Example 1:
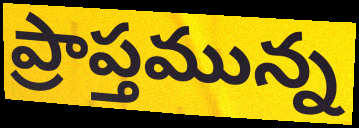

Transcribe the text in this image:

ప్రాప్తమున్న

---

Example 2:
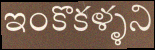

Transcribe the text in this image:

ఇంకొకళ్ళని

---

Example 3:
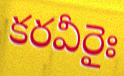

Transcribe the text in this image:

కరవీరైః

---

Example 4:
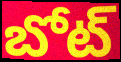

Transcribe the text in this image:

బోట్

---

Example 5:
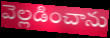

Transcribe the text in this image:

వెల్లడించాను